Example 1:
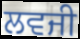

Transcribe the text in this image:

ਲਵਜੀ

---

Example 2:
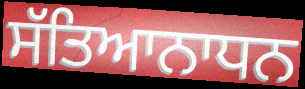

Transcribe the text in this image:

ਸੱਤਿਆਨਾਧਨ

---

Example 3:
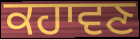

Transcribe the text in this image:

ਕਹਾਵਣ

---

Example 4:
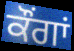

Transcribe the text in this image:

ਕੌਂਗਾਂ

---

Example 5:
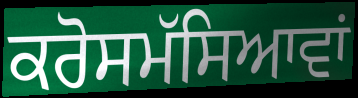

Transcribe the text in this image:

ਕਰੋਸਮੱਸਿਆਵਾਂ